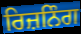
ਰਿਜ਼ਨਿੰਗ